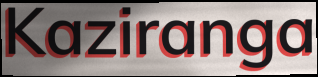
Kaziranga